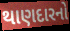
થાણદારનો